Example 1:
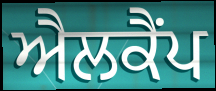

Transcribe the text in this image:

ਐਲਕੈਂਪ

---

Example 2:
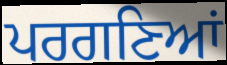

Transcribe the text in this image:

ਪਰਗਣਿਆਂ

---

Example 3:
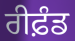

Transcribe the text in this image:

ਰੀਫ਼ੰਡ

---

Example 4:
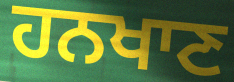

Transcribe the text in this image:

ਹਨਖਾਣ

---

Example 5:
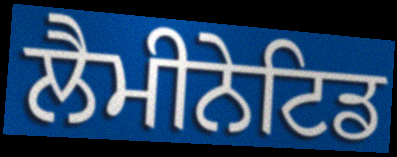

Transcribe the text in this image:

ਲੈਮੀਨੇਟਿਡ